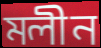
মলীন